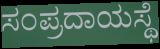
ಸಂಪ್ರದಾಯಸ್ಥೆ